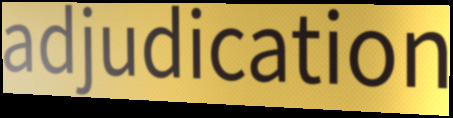
adjudication